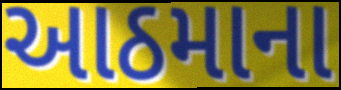
આઠમાના